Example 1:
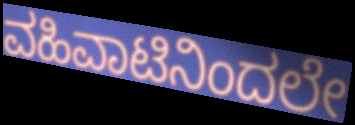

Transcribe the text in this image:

ವಹಿವಾಟಿನಿಂದಲೇ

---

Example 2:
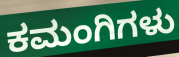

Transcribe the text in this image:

ಕಮಂಗಿಗಳು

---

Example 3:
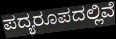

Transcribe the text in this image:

ಪದ್ಯರೂಪದಲ್ಲಿವೆ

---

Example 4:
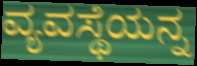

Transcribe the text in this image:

ವ್ಯವಸ್ಥೆಯನ್ನ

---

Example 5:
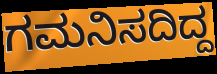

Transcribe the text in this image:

ಗಮನಿಸದಿದ್ದ